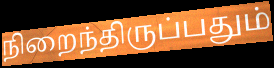
நிறைந்திருப்பதும்